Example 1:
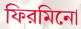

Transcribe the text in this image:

ফিরমিনো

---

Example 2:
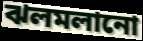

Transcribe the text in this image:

ঝলমলানো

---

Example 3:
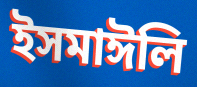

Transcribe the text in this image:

ইসমাঈলি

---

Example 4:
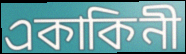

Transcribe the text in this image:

একাকিনী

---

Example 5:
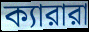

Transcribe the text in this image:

ক্যারারা